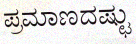
ಪ್ರಮಾಣದಷ್ಟು